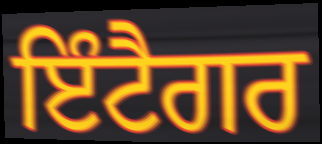
ਇੰਟੈਗਰ